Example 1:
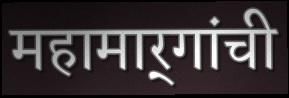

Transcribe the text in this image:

महामार्गांची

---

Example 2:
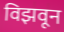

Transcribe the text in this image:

विझवून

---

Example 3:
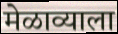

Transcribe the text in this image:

मेळाव्याला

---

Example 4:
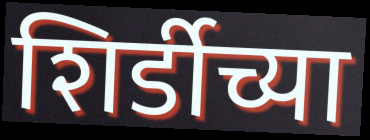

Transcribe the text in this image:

शिर्डीच्या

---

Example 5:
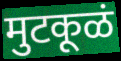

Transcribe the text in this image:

मुटकूळं